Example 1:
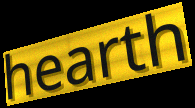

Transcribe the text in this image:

hearth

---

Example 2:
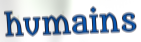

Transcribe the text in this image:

humains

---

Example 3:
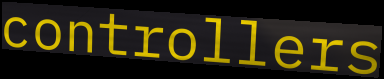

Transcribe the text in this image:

controllers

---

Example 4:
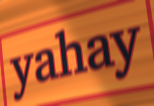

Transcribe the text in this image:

yahay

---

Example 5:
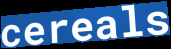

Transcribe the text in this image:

cereals